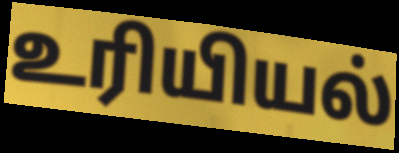
உரியியல்